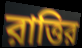
রাত্তির